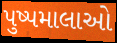
પુષ્પમાલાઓ